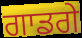
ਗਾਡਗੇ